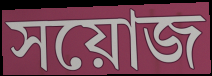
সয়োজ